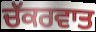
ਚੱਕਰਵਾਤ